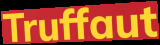
Truffaut